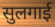
सुलगाई